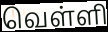
வெள்ளி